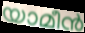
യാമീൻ